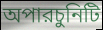
অপারচুনিটি